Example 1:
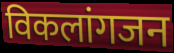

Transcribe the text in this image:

विकलांगजन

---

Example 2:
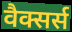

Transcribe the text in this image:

वैक्सर्स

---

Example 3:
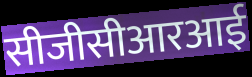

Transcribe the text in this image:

सीजीसीआरआई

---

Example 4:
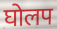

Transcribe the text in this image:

घोलप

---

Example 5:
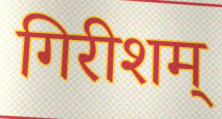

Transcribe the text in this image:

गिरीशम्